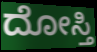
ದೋಸ್ತಿ